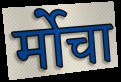
र्मोचा